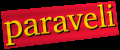
paraveli